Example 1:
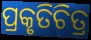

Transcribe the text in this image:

ପ୍ରକୃତିଚିତ୍ର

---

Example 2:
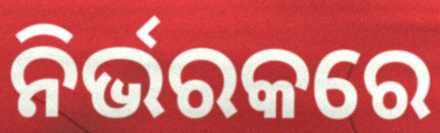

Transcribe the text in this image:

ନିର୍ଭରକରେ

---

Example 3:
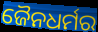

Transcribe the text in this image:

ଜୈନଧର୍ମର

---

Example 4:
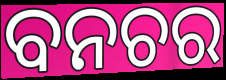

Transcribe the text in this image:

ବନଚର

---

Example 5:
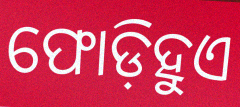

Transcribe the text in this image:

ଫୋଡ଼ିହୁଏ